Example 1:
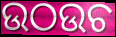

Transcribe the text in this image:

ଉଠଉଚ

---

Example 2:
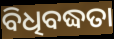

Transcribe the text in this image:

ବିଧିବଦ୍ଧତା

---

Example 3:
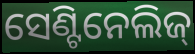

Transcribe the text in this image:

ସେଣ୍ଟିନେଲିଜ୍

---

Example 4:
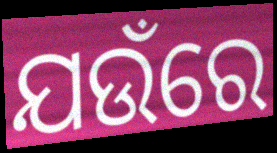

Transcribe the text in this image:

ଯଉଁରେ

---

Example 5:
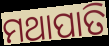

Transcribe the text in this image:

ମଥାପାତି